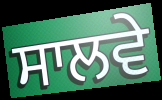
ਸਾਲਵੇ